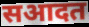
सआदत